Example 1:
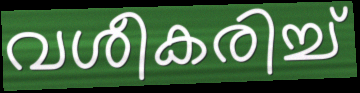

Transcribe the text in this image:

വശീകരിച്ച്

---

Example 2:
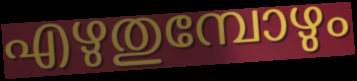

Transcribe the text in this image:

എഴുതുമ്പോഴും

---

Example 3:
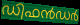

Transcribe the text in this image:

ഡിഫൻഡർ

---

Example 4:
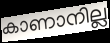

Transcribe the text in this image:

കാണാനില്ല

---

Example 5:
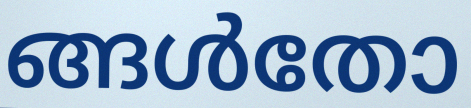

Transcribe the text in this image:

ങ്ങൾതോ